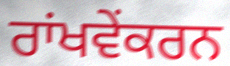
ਰਾਂਖਵੇਂਕਰਨ